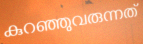
കുറഞ്ഞുവരുന്നത്